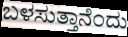
ಬಳಸುತ್ತಾನೆಂದು